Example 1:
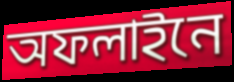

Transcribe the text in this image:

অফলাইনে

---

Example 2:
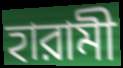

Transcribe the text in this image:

হারামী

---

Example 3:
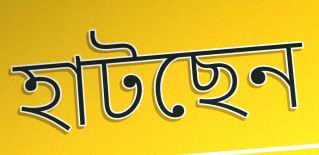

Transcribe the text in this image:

হাটছেন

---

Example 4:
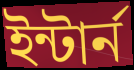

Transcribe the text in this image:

ইন্টার্ন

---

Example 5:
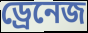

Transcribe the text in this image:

ড্রেনেজ